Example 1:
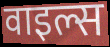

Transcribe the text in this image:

वाइल्स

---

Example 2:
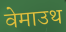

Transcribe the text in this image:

वेमाउथ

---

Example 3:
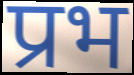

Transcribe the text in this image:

प्रभ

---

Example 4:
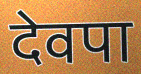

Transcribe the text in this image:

देवपा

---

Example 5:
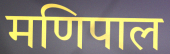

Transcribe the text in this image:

मणिपाल